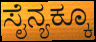
ಸೈನ್ಯಕ್ಕೂ